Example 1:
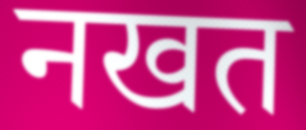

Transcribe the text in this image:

नखत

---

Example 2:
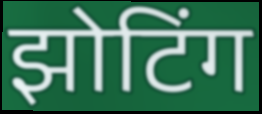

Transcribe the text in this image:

झोटिंग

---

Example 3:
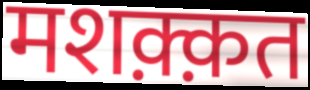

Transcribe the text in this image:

मशक़्क़त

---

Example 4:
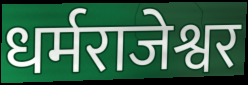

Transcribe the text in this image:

धर्मराजेश्वर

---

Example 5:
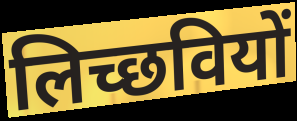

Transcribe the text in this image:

लिच्छवियों